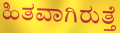
ಹಿತವಾಗಿರುತ್ತೆ